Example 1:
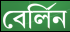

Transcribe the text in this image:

বের্লিন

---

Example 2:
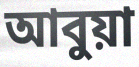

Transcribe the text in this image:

আবুয়া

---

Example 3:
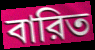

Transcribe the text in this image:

বারিত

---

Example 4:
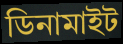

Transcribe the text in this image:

ডিনামাইট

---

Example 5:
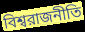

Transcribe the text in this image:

বিশ্বরাজনীতি